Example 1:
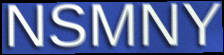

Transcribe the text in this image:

NSMNY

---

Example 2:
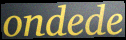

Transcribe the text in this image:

ondede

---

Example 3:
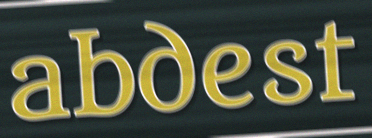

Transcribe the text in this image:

abdest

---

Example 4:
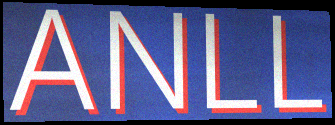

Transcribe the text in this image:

ANLL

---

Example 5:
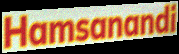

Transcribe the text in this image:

Hamsanandi